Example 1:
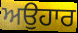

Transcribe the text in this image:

ਅਉਹਾਰ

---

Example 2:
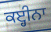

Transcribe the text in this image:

ਕੲ੍ਹੀਨਾ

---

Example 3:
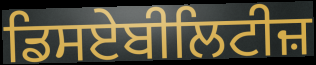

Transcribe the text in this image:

ਡਿਸਏਬੀਲਿਟੀਜ਼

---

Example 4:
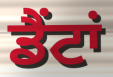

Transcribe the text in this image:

ਡੈਂਟਾਂ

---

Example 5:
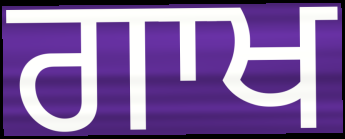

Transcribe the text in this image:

ਗਾਖ